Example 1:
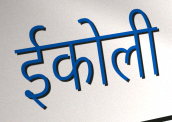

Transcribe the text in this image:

ईकोली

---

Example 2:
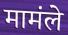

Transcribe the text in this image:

मामंले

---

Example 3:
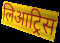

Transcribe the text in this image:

लिआट्रिस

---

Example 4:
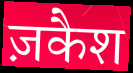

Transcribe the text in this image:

ज़कैश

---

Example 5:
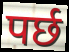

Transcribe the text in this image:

पर्छ